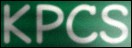
KPCS